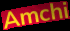
Amchi